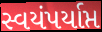
સ્વયંપર્યાપ્ત